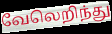
வேலெறிந்து